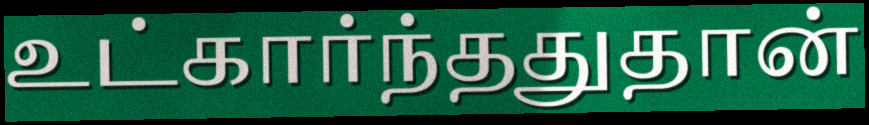
உட்கார்ந்ததுதான்